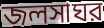
জলসাঘর